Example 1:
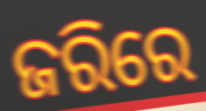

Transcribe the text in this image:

ଜରିରେ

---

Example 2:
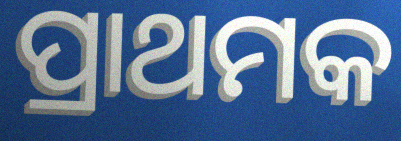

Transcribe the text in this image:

ପ୍ରାଥମକ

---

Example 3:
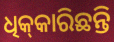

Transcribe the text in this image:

ଧିକ୍‌କାରିଛନ୍ତି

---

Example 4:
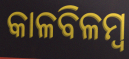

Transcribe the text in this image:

କାଳବିଳମ୍ବ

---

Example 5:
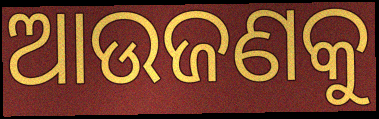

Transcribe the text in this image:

ଆଉଜଣକୁ